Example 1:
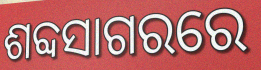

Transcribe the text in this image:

ଶବ୍ଦସାଗରରେ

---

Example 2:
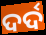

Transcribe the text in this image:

ଦର୍ଦ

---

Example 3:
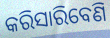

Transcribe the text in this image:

କରିସାରିବେଣି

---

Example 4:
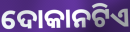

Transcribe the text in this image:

ଦୋକାନଟିଏ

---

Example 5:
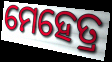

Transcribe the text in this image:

ମେହେତ୍ର